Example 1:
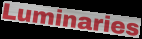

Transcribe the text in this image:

Luminaries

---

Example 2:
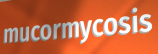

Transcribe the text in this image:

mucormycosis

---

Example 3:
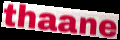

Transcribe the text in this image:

thaane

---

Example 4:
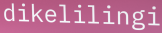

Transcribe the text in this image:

dikelilingi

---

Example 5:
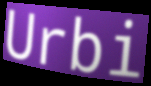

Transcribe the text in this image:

Urbi